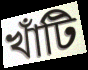
খাঁটি